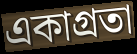
একাগ্রতা